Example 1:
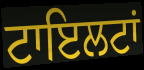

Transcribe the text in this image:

ਟਾਇਲਟਾਂ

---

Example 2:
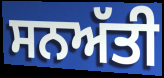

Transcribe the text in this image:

ਸਨਅੱਤੀ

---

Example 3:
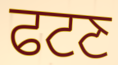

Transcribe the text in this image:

ਫਟਣ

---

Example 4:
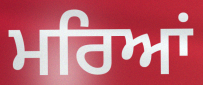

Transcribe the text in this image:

ਮਰਿਆਂ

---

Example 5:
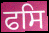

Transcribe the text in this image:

ਫਸਿ